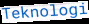
Teknologi